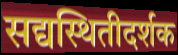
सद्यस्थितीदर्शक